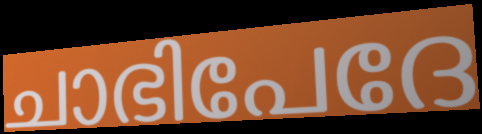
ചാഭിപേദേ